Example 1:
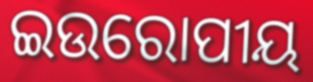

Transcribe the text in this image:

ଇଉରୋପୀୟ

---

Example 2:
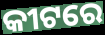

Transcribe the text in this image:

କୀଟରେ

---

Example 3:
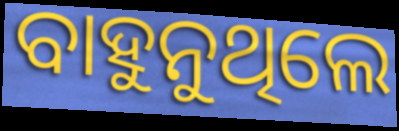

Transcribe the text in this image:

ବାହୁନୁଥିଲେ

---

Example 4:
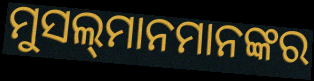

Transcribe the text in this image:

ମୁସଲ୍‌ମାନମାନଙ୍କର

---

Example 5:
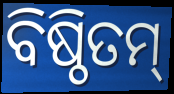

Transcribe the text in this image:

ବିଷ୍ଠିତମ୍